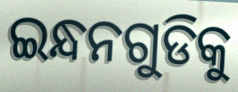
ଇନ୍ଧନଗୁଡିକୁ